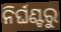
ନିର୍ଘଣ୍ଟରୁ